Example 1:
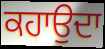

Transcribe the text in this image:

ਕਹਾਉਦਾ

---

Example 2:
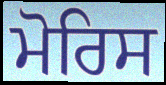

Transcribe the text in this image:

ਮੋਰਿਸ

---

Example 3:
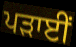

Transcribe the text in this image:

ਪੜਾਈਂ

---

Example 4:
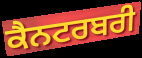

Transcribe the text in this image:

ਕੈਨਟਰਬਰੀ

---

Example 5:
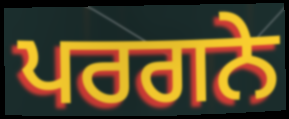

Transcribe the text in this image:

ਪਰਗਨੇ